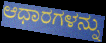
ಆಧಾರಗಳನ್ನು